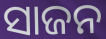
ସାଜନ